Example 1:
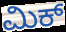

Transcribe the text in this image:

ಮಿಕ್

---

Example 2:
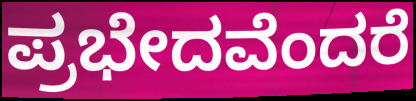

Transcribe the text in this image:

ಪ್ರಭೇದವೆಂದರೆ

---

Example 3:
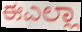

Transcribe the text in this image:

ಈಎಲ್ಲಾ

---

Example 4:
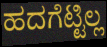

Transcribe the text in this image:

ಹದಗೆಟ್ಟಿಲ್ಲ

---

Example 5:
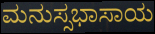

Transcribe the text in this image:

ಮನುಸ್ಸಭಾಸಾಯ